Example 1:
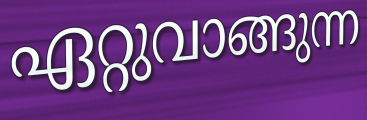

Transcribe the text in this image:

ഏറ്റുവാങ്ങുന്ന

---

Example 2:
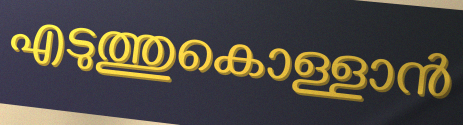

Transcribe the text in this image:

എടുത്തുകൊള്ളാൻ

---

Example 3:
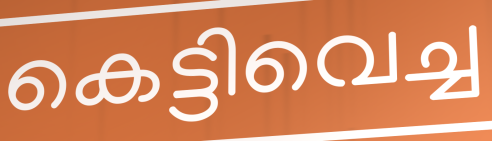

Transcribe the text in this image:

കെട്ടിവെച്ച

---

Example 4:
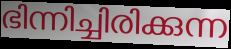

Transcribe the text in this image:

ഭിന്നിച്ചിരിക്കുന്ന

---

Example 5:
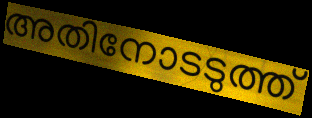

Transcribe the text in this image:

അതിനോടടുത്ത്